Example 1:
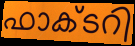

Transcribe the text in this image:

ഫാക്ടറി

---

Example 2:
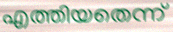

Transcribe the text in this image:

എത്തിയതെന്ന്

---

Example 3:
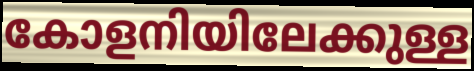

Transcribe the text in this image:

കോളനിയിലേക്കുള്ള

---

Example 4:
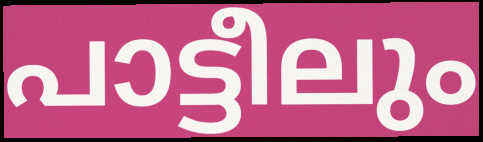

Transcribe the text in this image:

പാട്ടീലും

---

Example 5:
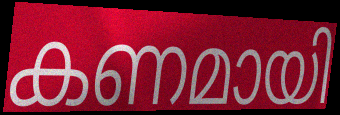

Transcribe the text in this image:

കണമായി